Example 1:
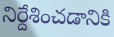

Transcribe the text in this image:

నిర్దేశించడానికి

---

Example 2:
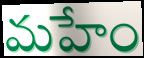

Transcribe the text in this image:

మహేం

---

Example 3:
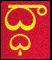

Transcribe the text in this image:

ద్ధా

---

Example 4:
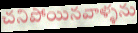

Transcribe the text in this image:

చనిపోయినవాళ్ళను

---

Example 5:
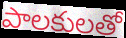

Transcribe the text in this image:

పాలకులతో